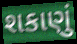
શકાણું